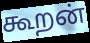
கூறன்